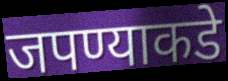
जपण्याकडे